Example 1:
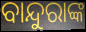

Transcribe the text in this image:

ବାନ୍ଦୁରାଙ୍କ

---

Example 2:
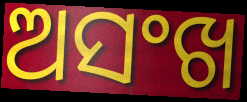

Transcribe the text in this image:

ଅସଂଖ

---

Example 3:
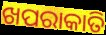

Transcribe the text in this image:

ଖପରାକାତି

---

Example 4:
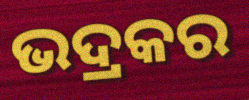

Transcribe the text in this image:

ଭଦ୍ରକର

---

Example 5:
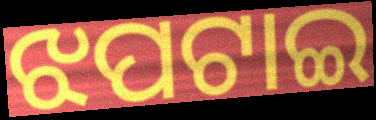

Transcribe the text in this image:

ଝପଟାଇ